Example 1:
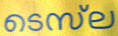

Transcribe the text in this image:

ടെസ്‌ല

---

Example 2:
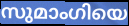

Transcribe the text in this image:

സുമാംഗിയെ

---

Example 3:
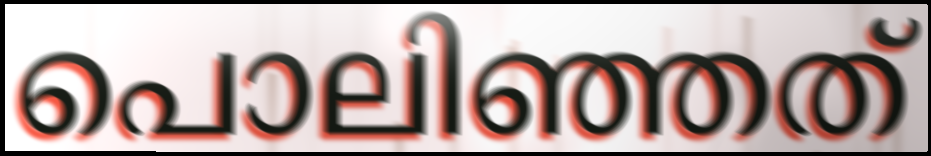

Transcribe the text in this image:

പൊലിഞ്ഞത്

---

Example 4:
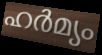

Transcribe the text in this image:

ഹർമ്യം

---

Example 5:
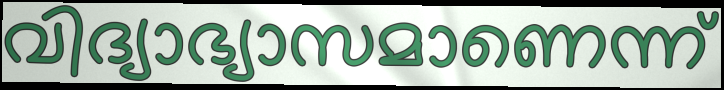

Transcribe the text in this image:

വിദ്യാഭ്യാസമാണെന്ന്